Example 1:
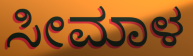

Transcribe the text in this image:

ಸೀಮಾಳ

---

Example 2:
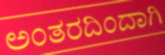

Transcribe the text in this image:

ಅಂತರದಿಂದಾಗಿ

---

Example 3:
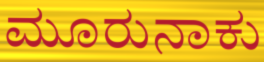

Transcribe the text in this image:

ಮೂರುನಾಕು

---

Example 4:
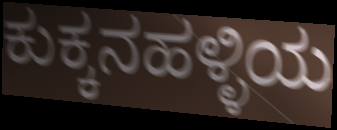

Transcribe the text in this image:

ಕುಕ್ಕನಹಳ್ಳಿಯ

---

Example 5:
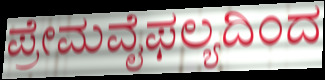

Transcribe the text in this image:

ಪ್ರೇಮವೈಫಲ್ಯದಿಂದ